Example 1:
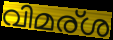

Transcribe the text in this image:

വിമര്ശ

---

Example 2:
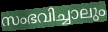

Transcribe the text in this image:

സംഭവിച്ചാലും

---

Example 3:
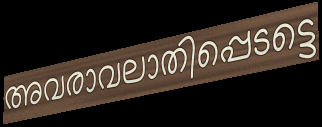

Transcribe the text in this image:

അവരാവലാതിപ്പെടട്ടെ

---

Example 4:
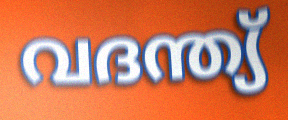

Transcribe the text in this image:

വദന്ത്യ്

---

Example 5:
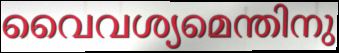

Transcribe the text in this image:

വൈവശ്യമെന്തിനു